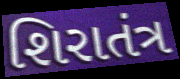
શિરાતંત્ર